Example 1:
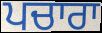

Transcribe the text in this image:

ਪਚਾਰਾ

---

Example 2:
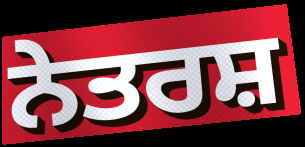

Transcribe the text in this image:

ਨੇਤਰਸ਼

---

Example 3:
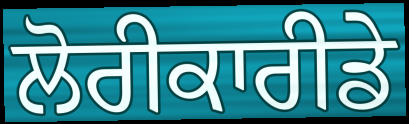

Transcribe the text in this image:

ਲੋਰੀਕਾਰੀਡੇ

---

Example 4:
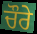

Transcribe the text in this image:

ਚੌਰੇ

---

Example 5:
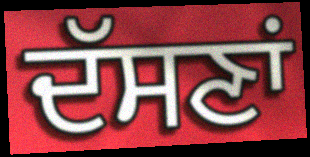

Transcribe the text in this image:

ਦੱਸਣਾਂ